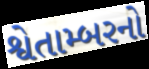
શ્વેતામ્બરનો